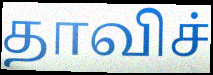
தாவிச்